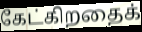
கேட்கிறதைக்